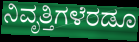
ನಿವೃತ್ತಿಗಳೆರಡೂ